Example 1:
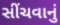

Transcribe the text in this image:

સીંચવાનું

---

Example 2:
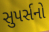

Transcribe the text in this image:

સુપર્સનો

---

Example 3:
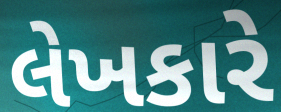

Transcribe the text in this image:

લેખકારે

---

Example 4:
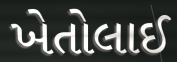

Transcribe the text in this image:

ખેતોલાઈ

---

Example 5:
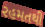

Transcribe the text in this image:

રહમતથી